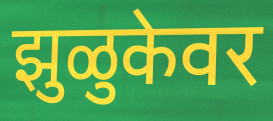
झुळुकेवर